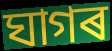
ঘাগৰ